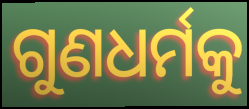
ଗୁଣଧର୍ମକୁ